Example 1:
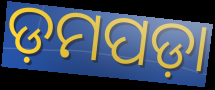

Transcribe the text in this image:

ଡ଼ମପଡ଼ା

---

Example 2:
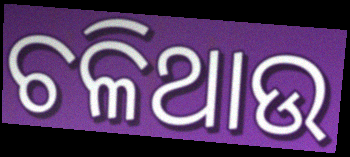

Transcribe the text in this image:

ଚଳିଥାଉ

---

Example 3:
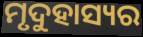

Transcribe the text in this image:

ମୃଦୁହାସ୍ୟର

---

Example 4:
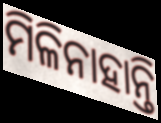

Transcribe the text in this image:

ମିଳିନାହାନ୍ତି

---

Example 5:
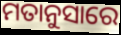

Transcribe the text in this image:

ମତାନୁସାରେ